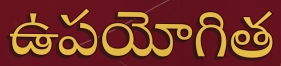
ఉపయోగిత